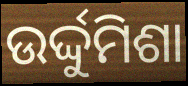
ଉର୍ଦ୍ଦୁମିଶା